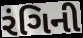
રંગિની